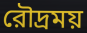
রৌদ্রময়